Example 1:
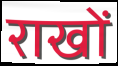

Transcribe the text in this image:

राखों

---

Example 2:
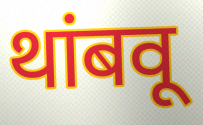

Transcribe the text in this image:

थांबवू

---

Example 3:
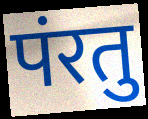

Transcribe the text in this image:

पंरतु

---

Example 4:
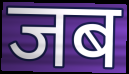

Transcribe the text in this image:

जब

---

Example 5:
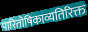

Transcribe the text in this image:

पारितोषिकाव्यतिरिक्त